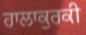
ਹਾਲਾਕੁਰਕੀ